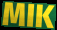
MIK